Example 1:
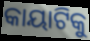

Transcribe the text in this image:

କାୟାଟିକୁ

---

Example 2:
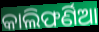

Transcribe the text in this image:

କାଲିଫର୍ଣିଆ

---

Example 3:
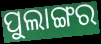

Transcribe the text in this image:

ପୁଲାଙ୍ଗର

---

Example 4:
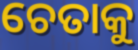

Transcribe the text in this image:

ଚେତାକୁ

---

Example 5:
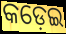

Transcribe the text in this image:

କଡ଼େଇ